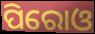
ପିରୋଓ